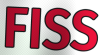
FISS